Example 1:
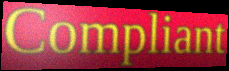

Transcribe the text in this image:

Compliant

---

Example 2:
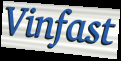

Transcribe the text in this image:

Vinfast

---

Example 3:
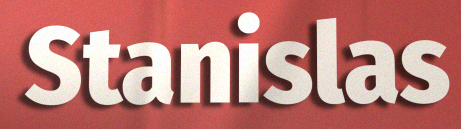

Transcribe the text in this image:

Stanislas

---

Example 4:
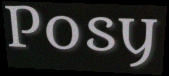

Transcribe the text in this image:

Posy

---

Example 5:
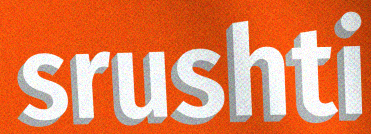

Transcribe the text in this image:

srushti